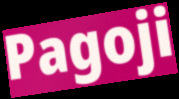
Pagoji